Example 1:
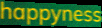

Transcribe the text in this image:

happyness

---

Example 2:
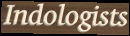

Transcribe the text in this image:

Indologists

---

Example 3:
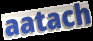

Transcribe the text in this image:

aatach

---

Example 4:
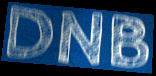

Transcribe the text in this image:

DNB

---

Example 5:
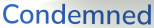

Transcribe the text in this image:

Condemned